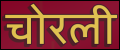
चोरली